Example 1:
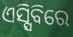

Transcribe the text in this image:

ଏସ୍ସିବିରେ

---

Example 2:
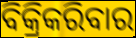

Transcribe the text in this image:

ବିକ୍ରିକରିବାର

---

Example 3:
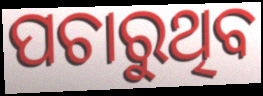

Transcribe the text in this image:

ପଚାରୁଥିବ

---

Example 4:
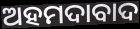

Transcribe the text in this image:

ଅହମଦାବାଦ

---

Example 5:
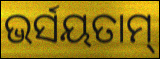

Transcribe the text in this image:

ଭର୍ସୟତାମ୍